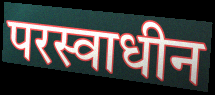
परस्वाधीन